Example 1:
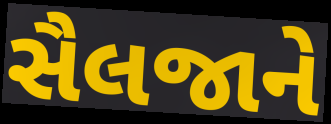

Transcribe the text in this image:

સૈલજાને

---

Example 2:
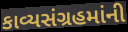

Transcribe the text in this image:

કાવ્યસંગ્રહમાંની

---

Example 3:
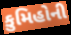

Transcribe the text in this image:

કુમિહોની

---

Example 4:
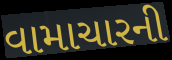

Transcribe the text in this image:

વામાચારની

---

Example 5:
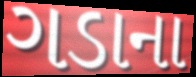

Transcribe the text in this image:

ગડાના